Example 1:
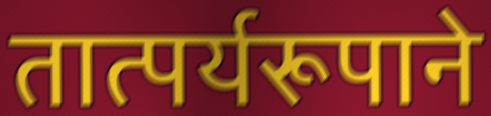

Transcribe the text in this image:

तात्पर्यरूपाने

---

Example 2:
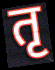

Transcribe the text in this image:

तृ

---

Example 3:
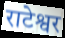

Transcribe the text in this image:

राटेश्वर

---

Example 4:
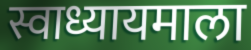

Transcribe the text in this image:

स्वाध्यायमाला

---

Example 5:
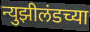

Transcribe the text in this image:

न्युझीलंडच्या